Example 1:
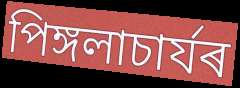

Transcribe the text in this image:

পিঙ্গলাচাৰ্যৰ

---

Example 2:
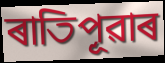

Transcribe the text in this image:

ৰাতিপূৱাৰ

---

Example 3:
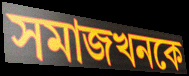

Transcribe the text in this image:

সমাজখনকে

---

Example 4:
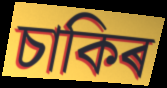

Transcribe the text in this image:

চাকিৰ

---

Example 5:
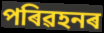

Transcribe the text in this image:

পৰিৱহনৰ